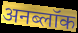
अनब्लॉक